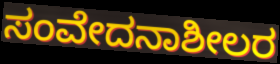
ಸಂವೇದನಾಶೀಲರ